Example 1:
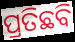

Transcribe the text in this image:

ପ୍ରତିଛବି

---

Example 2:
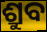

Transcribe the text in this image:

ଶ୍ରୁବ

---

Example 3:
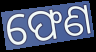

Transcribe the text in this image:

ଫେଣ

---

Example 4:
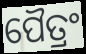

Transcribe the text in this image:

ପୈତ୍ରଂ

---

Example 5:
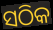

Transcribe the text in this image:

ସଠିକ